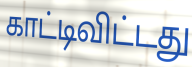
காட்டிவிட்டது